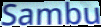
Sambu